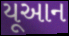
યૂઆન